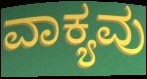
ವಾಕ್ಯವು